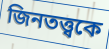
জিনতত্ত্বকে